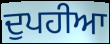
ਦੁਪਹੀਆ